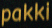
pakki